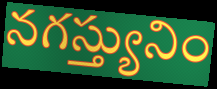
నగస్త్యునిం